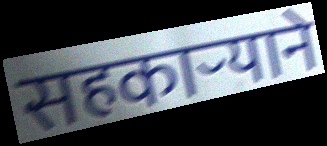
सहकाऱ्याने